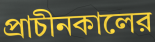
প্রাচীনকালের